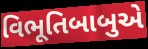
વિભૂતિબાબુએ